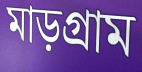
মাড়গ্রাম